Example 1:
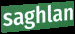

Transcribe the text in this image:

saghlan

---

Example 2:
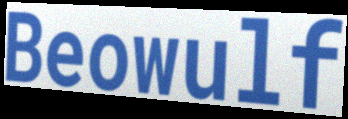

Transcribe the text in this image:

Beowulf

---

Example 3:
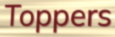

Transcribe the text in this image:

Toppers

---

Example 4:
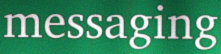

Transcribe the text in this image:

messaging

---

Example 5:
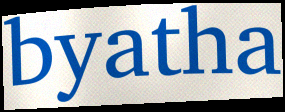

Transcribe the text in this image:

byatha